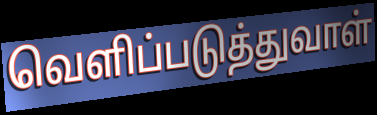
வெளிப்படுத்துவாள்